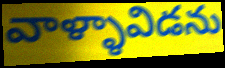
వాళ్ళావిడను